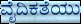
ವೈದಿಕತೆಯು